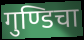
गुण्डिचा